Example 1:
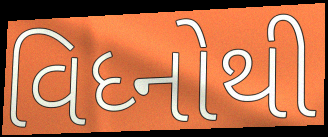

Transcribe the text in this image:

વિધ્નોથી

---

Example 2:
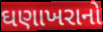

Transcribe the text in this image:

ઘણાખરાનો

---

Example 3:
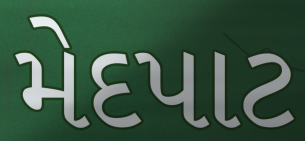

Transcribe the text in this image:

મેદપાટ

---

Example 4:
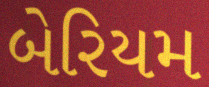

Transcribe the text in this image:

બેરિયમ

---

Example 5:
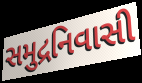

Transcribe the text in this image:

સમુદ્રનિવાસી